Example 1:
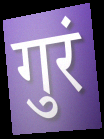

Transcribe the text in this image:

गुरं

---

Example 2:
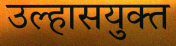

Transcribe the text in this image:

उल्हासयुक्त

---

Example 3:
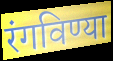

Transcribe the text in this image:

रंगविण्या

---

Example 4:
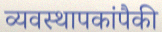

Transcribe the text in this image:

व्यवस्थापकांपैकी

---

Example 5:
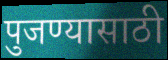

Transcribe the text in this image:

पुजण्यासाठी